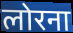
लोरना